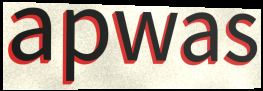
apwas